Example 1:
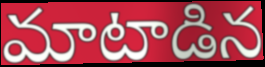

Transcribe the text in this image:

మాటాడిన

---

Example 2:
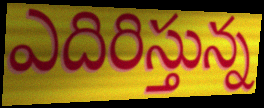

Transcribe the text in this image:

ఎదిరిస్తున్న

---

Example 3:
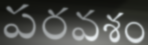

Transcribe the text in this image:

పరవశం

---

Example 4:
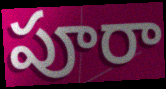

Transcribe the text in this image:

పూరా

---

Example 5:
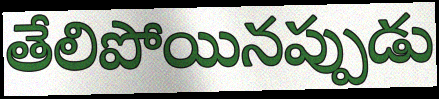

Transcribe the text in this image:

తేలిపోయినప్పుడు